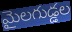
మైలగుడ్డల